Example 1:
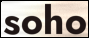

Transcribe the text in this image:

soho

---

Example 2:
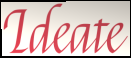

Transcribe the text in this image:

Ideate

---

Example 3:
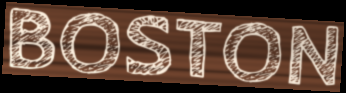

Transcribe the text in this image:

BOSTON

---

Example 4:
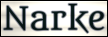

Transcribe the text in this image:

Narke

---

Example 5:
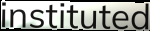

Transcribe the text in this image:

instituted